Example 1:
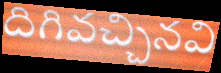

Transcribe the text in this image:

దిగివచ్చినవి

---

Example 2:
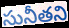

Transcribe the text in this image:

సునీతని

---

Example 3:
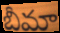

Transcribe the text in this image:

బీమా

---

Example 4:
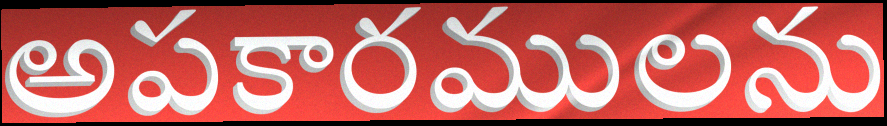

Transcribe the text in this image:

అపకారములను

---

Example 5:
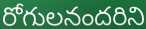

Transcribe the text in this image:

రోగులనందరిని